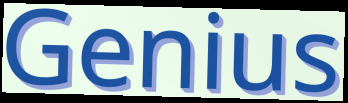
Genius